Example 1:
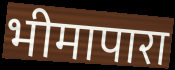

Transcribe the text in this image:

भीमापारा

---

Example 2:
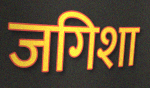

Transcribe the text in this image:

जगिशा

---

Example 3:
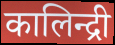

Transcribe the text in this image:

कालिन्द्री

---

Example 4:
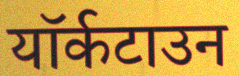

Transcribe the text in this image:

यॉर्कटाउन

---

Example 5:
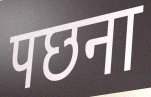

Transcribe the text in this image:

पछना